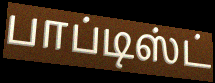
பாப்டிஸ்ட்